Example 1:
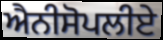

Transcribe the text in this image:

ਐਨੀਸੋਪਲੀਏ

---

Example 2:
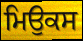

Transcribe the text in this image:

ਮਿਉਕਸ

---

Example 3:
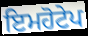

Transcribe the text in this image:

ਇਮਹੋਟੇਪ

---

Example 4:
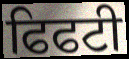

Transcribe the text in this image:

ਫਿਫਟੀ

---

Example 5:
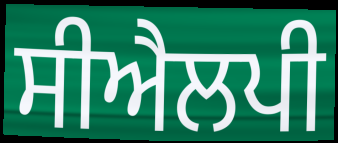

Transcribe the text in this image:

ਸੀਐਲਪੀ